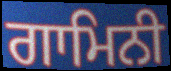
ਗਾਮਿਨੀ